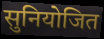
सुनियोजित